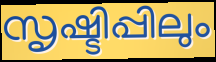
സൃഷ്ടിപ്പിലും